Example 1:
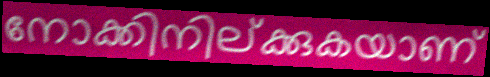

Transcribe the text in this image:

നോക്കിനില്ക്കുകയാണ്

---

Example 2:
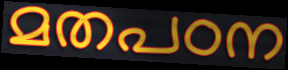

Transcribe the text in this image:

മതപഠന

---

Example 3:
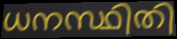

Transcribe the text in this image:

ധനസ്ഥിതി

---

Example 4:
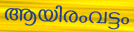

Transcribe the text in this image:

ആയിരംവട്ടം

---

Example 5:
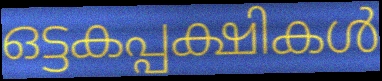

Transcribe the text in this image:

ഒട്ടകപ്പക്ഷികൾ